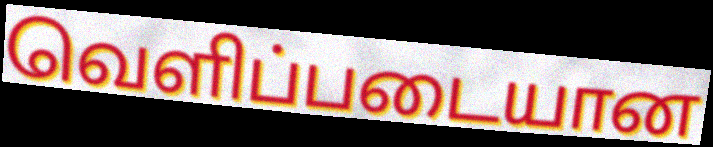
வெளிப்படையான